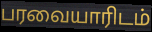
பரவையாரிடம்